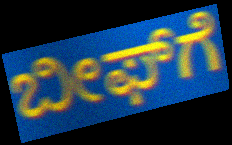
ಬೀಫ್‌ಗೆ